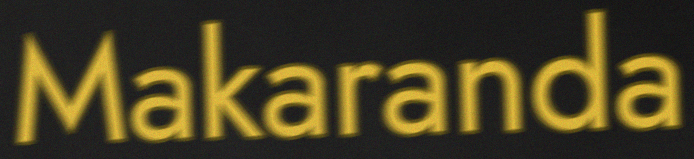
Makaranda